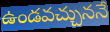
ఉండవచ్చుననే